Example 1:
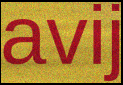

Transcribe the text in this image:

avij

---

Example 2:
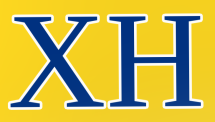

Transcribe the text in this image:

XH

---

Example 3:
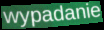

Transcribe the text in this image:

wypadanie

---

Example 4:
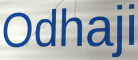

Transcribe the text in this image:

Odhaji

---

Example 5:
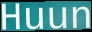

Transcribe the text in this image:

Huun